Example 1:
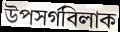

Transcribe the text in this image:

উপসৰ্গবিলাক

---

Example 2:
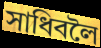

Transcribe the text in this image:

সাধিবলৈ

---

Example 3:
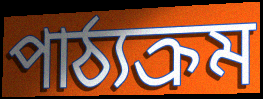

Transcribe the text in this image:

পাঠ্যক্ৰম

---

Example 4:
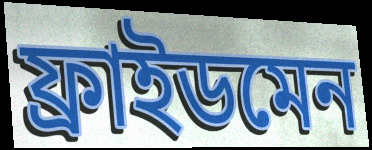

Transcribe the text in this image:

ফ্ৰাইডমেন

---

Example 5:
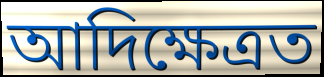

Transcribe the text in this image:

আদিক্ষেত্ৰত